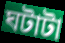
ঘটাটা